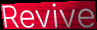
Revive